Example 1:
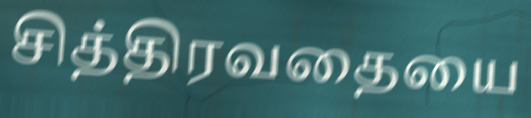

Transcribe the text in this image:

சித்திரவதையை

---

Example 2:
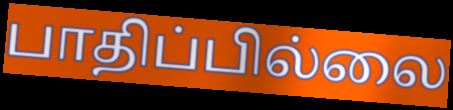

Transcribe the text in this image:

பாதிப்பில்லை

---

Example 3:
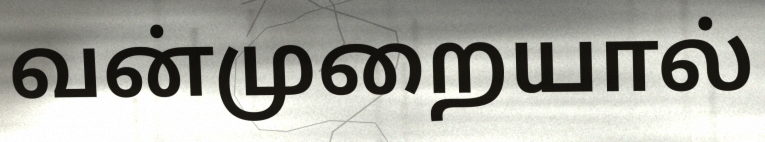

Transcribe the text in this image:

வன்முறையால்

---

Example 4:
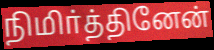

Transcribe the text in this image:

நிமிர்த்தினேன்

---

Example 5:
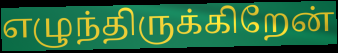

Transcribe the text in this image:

எழுந்திருக்கிறேன்